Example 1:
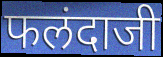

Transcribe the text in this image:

फलंदाजी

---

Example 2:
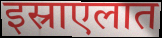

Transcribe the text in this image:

इस्राएलात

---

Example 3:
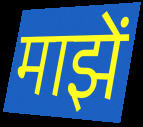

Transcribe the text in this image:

माझें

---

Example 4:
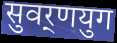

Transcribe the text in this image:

सुवर्णयुग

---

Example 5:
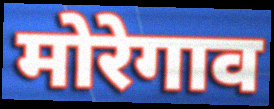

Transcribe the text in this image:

मोरेगाव